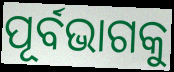
ପୂର୍ବଭାଗକୁ